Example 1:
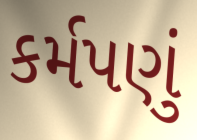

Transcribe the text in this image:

કર્મપણું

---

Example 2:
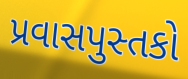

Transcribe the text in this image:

પ્રવાસપુસ્તકો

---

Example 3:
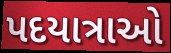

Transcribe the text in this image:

પદયાત્રાઓ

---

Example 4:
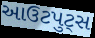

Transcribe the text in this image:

આઉટપુટ્સ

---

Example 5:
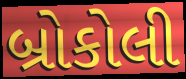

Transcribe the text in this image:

બ્રોકોલી